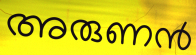
അരുണൻ